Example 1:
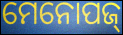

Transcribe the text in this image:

ମେନୋପଜ୍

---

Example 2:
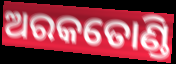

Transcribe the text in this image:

ଅରକତୋଣ୍ଡି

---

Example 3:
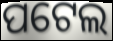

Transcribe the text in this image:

ପଟେଲ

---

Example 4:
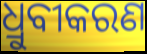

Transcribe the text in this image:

ଧ୍ରୁବୀକରଣ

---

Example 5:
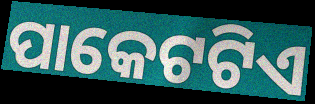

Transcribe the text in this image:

ପାକେଟଟିଏ